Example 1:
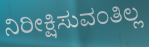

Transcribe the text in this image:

ನಿರೀಕ್ಷಿಸುವಂತಿಲ್ಲ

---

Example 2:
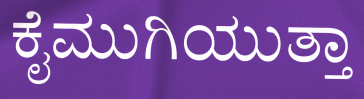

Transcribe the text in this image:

ಕೈಮುಗಿಯುತ್ತಾ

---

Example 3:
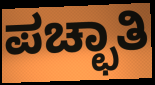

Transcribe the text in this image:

ಪಚ್ಛಾತಿ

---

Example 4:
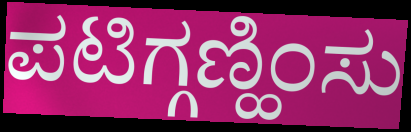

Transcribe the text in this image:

ಪಟಿಗ್ಗಣ್ಹಿಂಸು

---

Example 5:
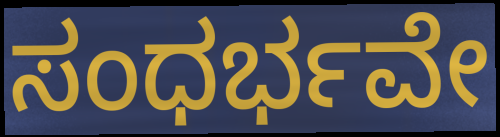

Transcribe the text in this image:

ಸಂಧರ್ಭವೇ